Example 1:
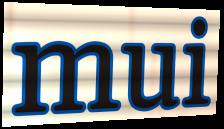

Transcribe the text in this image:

mui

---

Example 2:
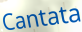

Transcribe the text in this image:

Cantata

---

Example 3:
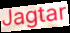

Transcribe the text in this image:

Jagtar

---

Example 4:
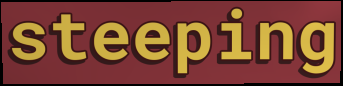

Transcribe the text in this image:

steeping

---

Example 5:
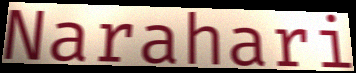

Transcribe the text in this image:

Narahari